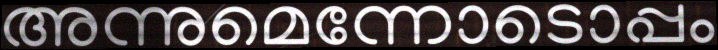
അന്നുമെന്നോടൊപ്പം